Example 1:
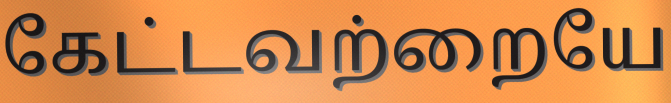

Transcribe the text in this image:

கேட்டவற்றையே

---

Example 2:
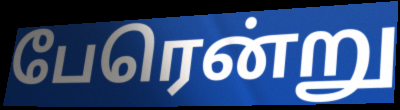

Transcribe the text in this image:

பேரென்று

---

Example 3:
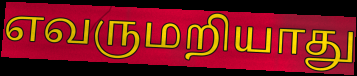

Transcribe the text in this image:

எவருமறியாது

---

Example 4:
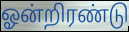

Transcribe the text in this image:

ஓன்றிரண்டு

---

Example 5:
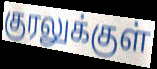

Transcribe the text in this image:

குரலுக்குள்